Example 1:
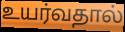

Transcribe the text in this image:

உயர்வதால்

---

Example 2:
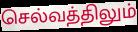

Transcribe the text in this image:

செல்வத்திலும்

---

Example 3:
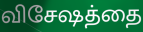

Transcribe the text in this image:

விசேஷத்தை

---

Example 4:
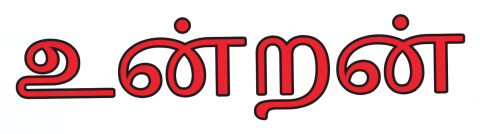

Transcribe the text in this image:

உன்றன்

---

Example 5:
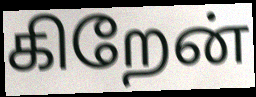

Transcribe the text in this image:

கிறேன்